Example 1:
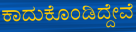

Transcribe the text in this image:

ಕಾದುಕೊಂಡಿದ್ದೇವೆ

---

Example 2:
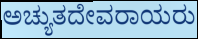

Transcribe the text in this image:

ಅಚ್ಯುತದೇವರಾಯರು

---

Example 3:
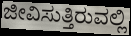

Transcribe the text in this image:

ಜೀವಿಸುತ್ತಿರುವಲ್ಲಿ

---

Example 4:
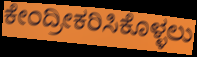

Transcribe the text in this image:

ಕೇಂದ್ರೀಕರಿಸಿಕೊಳ್ಳಲು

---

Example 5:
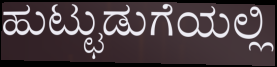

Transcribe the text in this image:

ಹುಟ್ಟುಡುಗೆಯಲ್ಲಿ